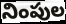
నింపుల